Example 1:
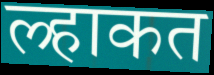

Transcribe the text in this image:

ल्हाकत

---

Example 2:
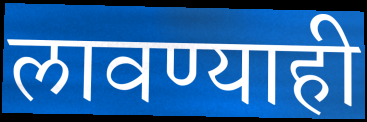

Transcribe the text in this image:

लावण्याही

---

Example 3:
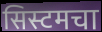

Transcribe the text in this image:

सिस्टमचा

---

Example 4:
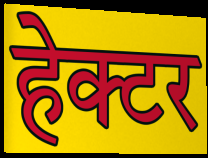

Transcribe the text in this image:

हेक्‍टर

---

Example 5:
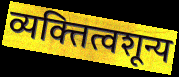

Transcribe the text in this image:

व्यक्तित्वशून्य